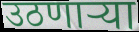
उठणाऱ्या